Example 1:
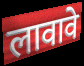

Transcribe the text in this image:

लावावे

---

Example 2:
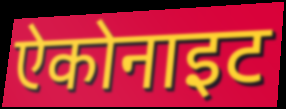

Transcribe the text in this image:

ऐकोनाइट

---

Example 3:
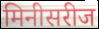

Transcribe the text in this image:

मिनीसरीज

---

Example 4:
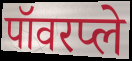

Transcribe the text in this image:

पॉवरप्ले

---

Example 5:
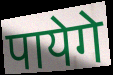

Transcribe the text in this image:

पायेगे